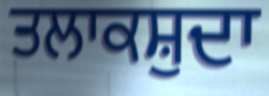
ਤਲਾਕਸ਼ੁਦਾ